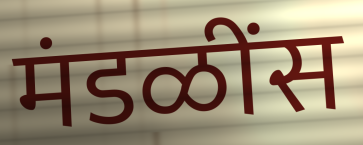
मंडळींस